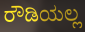
ರೌಡಿಯಲ್ಲ